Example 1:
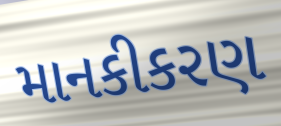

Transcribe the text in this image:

માનકીકરણ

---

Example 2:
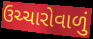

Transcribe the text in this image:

ઉચ્ચારોવાળું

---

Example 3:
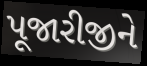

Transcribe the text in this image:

પૂજારીજીને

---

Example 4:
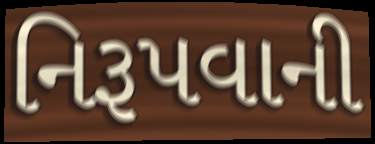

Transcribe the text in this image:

નિરૂપવાની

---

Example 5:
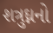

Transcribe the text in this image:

શત્રુઘ્નનો